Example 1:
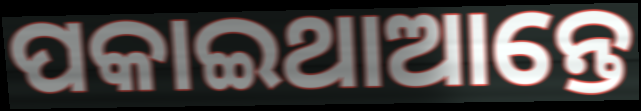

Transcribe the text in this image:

ପକାଇଥାଆନ୍ତେ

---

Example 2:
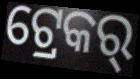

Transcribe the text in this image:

ଟ୍ରେକର୍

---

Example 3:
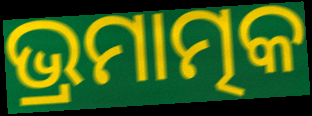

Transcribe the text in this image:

ଭ୍ରମାତ୍ମକ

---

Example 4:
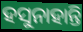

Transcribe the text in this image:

ହସୁନାହାନ୍ତି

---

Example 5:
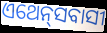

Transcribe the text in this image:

ଏଥେନ୍‌ସବାସୀ